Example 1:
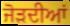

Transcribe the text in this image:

ਜੋੜਦੀਆਂ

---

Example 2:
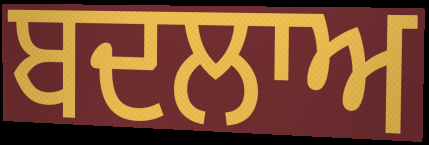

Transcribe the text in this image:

ਬਦਲਾਅ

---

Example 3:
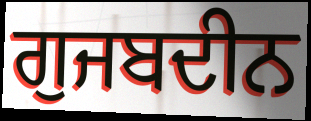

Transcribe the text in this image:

ਗੁਜਬਦੀਨ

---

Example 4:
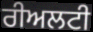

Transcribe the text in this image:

ਰੀਅਲਟੀ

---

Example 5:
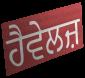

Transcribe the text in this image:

ਹੈਵੇਲਜ਼